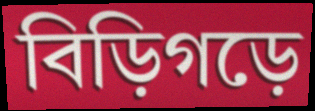
বিড়িগড়ে